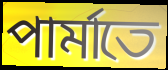
পার্মাতে